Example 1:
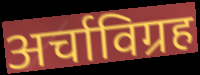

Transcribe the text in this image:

अर्चाविग्रह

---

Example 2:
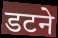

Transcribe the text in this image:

डटने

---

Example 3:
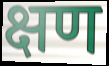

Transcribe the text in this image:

क्षण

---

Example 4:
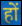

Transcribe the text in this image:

हों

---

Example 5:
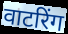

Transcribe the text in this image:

वाटरिंग